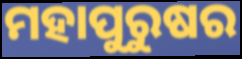
ମହାପୁରୁଷର